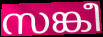
സങ്കീ